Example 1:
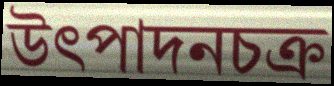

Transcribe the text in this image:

উৎপাদনচক্র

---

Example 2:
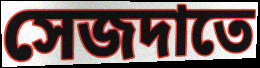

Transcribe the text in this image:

সেজদাতে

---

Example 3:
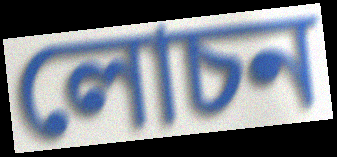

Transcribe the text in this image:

লোচন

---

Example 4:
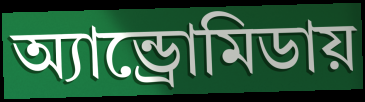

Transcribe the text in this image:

অ্যান্ড্রোমিডায়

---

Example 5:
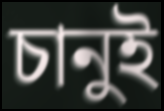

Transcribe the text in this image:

চানুই